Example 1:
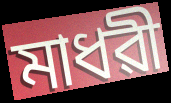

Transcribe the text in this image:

মাধৱী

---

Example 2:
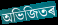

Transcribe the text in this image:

অভিজিতৰ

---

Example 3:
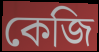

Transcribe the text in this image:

কেজি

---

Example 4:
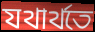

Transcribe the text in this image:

যথাৰ্থতে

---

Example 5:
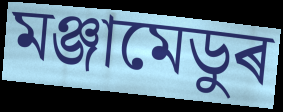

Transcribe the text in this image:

মঞ্জামেডুৰ